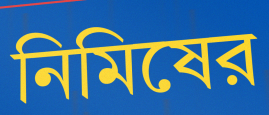
নিমিষের